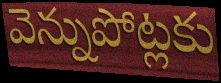
వెన్నుపోట్లకు